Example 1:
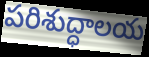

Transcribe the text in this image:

పరిశుద్ధాలయ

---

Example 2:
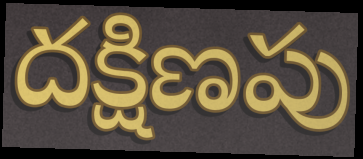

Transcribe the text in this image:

దక్షిణపు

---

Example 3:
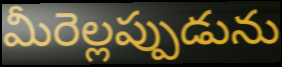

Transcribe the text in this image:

మీరెల్లప్పుడును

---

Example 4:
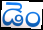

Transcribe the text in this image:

డెం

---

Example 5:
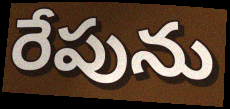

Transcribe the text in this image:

రేపును